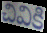
చివికి